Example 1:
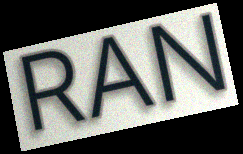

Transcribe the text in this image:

RAN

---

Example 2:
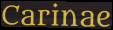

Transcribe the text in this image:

Carinae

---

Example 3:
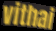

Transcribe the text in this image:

vithai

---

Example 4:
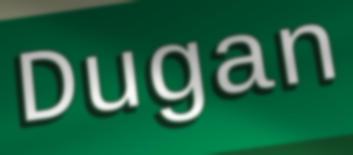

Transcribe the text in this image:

Dugan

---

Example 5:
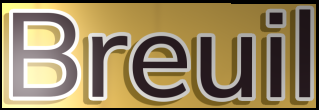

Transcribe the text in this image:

Breuil